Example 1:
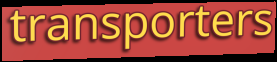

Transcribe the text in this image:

transporters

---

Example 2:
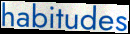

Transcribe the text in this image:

habitudes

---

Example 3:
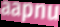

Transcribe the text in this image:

aapnu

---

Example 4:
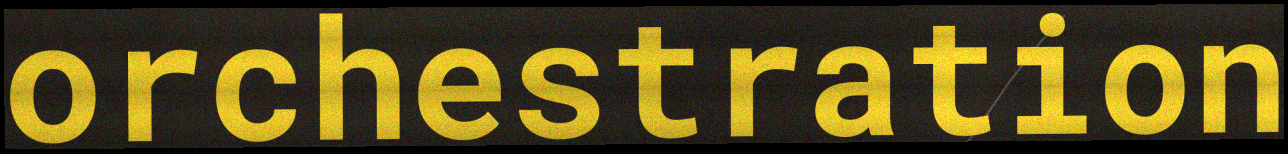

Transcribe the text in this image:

orchestration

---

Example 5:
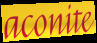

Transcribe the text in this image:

aconite